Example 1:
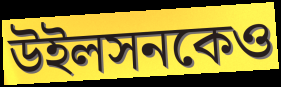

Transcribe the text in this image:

উইলসনকেও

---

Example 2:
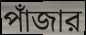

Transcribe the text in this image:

পাঁজার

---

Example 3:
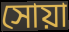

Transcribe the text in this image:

সোয়া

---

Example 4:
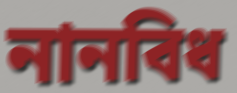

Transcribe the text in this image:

নানবিধ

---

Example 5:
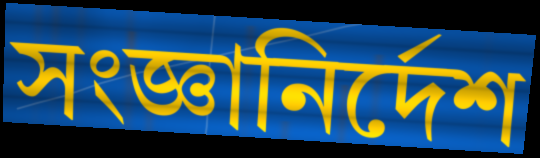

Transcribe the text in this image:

সংজ্ঞানির্দেশ